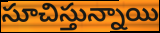
సూచిస్తున్నాయి